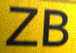
ZB